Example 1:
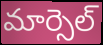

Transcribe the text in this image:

మార్సెల్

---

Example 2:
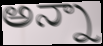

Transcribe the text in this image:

అన్నా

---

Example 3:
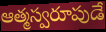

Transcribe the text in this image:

ఆత్మస్వరూపుడే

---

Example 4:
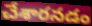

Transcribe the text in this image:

చేశారనడం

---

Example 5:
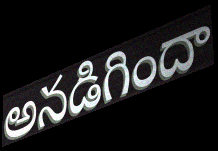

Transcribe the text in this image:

అనడిగిందా